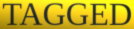
TAGGED